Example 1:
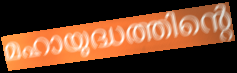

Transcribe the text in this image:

മഹായുദ്ധത്തിന്റെ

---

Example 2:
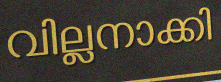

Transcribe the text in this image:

വില്ലനാക്കി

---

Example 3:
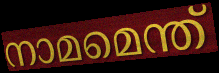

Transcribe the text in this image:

നാമമെന്ത്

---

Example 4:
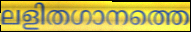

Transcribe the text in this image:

ലളിതഗാനത്തെ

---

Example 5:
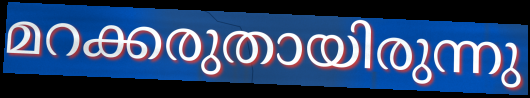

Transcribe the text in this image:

മറക്കരുതായിരുന്നു